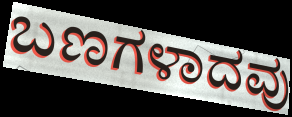
ಬಣಗಳಾದವು